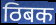
ठिबक